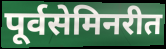
पूर्वसेमिनरीत